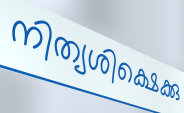
നിത്യശിക്ഷെക്കു